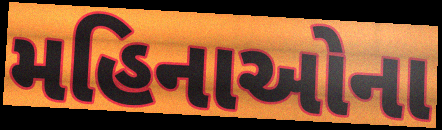
મહિનાઓના